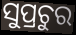
ସୁପ୍ରଚୁର